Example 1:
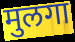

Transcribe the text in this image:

मुलगा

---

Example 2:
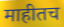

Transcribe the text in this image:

माहीतच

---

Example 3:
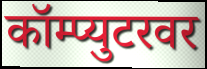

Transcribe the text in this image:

कॉम्प्युटरवर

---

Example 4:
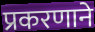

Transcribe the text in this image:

प्रकरणाने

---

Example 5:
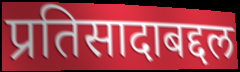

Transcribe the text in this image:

प्रतिसादाबद्दल